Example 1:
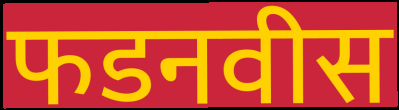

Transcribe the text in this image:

फडनवीस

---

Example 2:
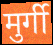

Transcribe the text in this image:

मुर्गी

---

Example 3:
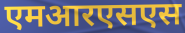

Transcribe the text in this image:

एमआरएसएस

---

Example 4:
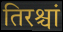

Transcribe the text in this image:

तिरश्चां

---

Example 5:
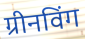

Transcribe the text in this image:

ग्रीनविंग